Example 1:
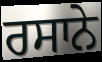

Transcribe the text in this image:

ਰਸਾਨੇ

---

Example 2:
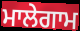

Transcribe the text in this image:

ਮਾਲੇਗਾਮ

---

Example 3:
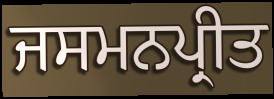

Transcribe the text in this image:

ਜਸਮਨਪ੍ਰੀਤ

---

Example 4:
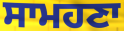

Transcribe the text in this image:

ਸਾਮਹਣਾ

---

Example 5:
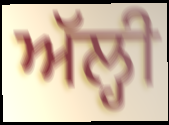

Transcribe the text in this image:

ਅੱਲ੍ਹੀ